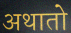
अथातो